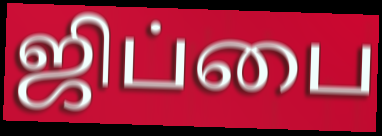
ஜிப்பை